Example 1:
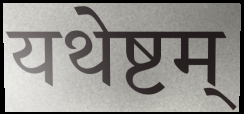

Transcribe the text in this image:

यथेष्टम्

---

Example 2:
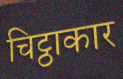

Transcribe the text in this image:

चिट्ठाकार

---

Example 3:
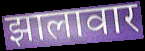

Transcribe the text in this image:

झालावार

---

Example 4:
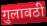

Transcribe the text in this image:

गुलावठी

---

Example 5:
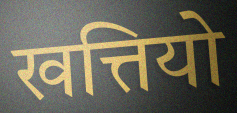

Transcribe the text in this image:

खत्तियो